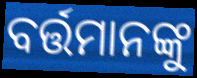
ବର୍ତ୍ତମାନଙ୍କୁ